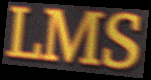
LMS